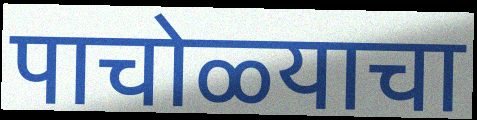
पाचोळ्याचा